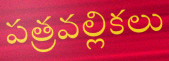
పత్రవల్లికలు